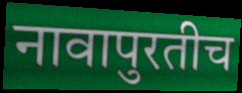
नावापुरतीच